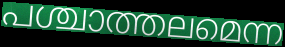
പശ്ചാത്തലമെന്ന